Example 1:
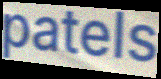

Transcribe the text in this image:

patels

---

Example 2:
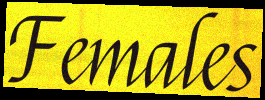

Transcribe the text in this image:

Females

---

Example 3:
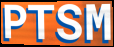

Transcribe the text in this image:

PTSM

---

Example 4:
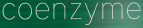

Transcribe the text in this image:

coenzyme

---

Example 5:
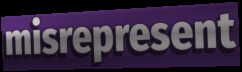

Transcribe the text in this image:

misrepresent